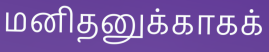
மனிதனுக்காகக்